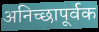
अनिच्छापूर्वक